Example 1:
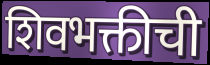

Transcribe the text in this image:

शिवभक्तीची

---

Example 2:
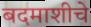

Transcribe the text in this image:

बदमाशीचे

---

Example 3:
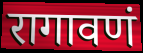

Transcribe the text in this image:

रागावणं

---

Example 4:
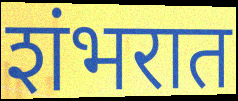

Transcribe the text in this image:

शंभरात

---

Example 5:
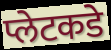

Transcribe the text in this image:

प्लेटकडे